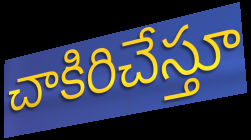
చాకిరిచేస్తూ